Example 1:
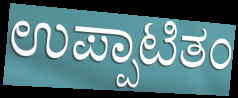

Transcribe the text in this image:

ಉಪ್ಪಾಟಿತಂ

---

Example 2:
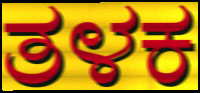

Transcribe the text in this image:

ತಳಕ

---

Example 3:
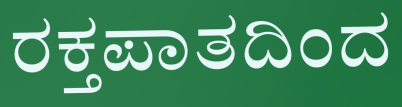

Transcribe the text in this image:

ರಕ್ತಪಾತದಿಂದ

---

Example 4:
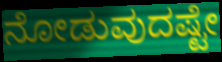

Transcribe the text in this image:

ನೋಡುವುದಷ್ಟೇ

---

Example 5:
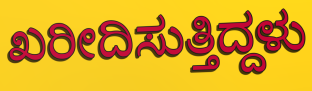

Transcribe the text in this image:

ಖರೀದಿಸುತ್ತಿದ್ದಳು